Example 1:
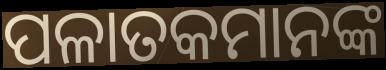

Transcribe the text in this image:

ପଳାତକମାନଙ୍କ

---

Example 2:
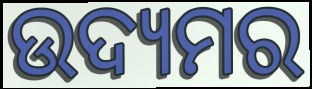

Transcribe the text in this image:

ଉଦ୍ୟମର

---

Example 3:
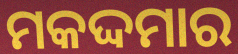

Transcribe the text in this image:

ମକଦ୍ଦମାର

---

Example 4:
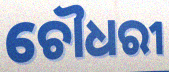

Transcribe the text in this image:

ଚୌଧରୀ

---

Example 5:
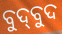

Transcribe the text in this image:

ବୁଦ୍‍ବୁଦ